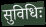
सुविधिः